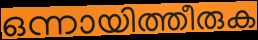
ഒന്നായിത്തീരുക